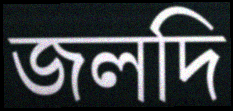
জলদি